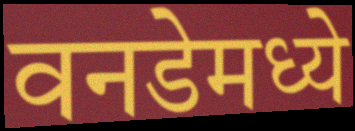
वनडेमध्ये